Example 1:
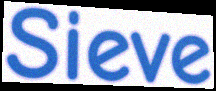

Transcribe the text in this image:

Sieve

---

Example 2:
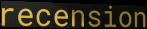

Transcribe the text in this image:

recension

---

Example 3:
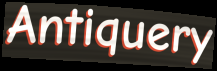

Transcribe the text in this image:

Antiquery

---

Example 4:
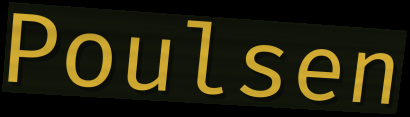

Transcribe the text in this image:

Poulsen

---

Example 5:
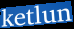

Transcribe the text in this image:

ketlun